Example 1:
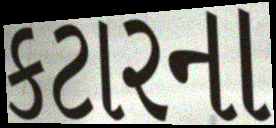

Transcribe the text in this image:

કટારના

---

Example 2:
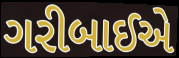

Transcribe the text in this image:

ગરીબાઈએ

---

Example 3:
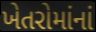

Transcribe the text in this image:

ખેતરોમાંનાં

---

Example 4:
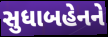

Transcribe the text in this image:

સુધાબહેનને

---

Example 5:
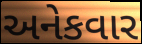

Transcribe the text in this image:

અનેકવાર